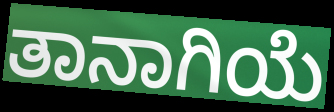
ತಾನಾಗಿಯೆ